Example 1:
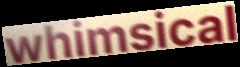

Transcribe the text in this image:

whimsical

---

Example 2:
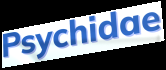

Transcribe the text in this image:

Psychidae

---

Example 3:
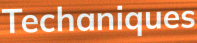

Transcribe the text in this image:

Techaniques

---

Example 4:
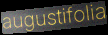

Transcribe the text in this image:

augustifolia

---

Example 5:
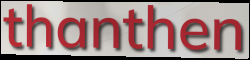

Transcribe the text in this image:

thanthen